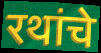
रथांचे